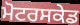
ਮੋਟਰਸਕੇਡ